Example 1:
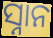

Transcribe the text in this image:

ସ୍ନାନ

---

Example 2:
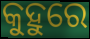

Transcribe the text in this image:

କୁହୁରେ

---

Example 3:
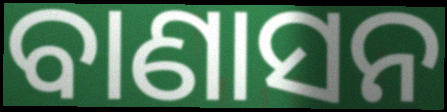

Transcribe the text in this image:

ବାଣାସନ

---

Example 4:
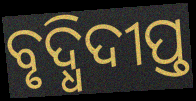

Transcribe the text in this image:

ବୃଦ୍ଧିଦୀପ୍ତ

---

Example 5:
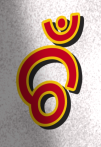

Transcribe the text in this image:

ଚଁ